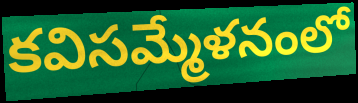
కవిసమ్మేళనంలో